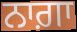
ਨਾਗ਼ਾ